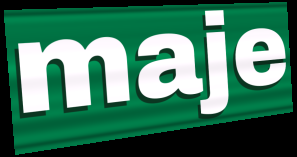
maje